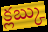
క్లబ్కు